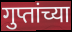
गुप्तांच्या